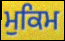
ਮੁਕਿਮ